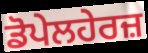
ਡੋਪੇਲਹੇਰਜ਼